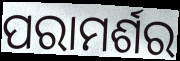
ପରାମର୍ଶର